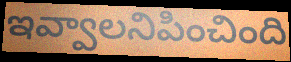
ఇవ్వాలనిపించింది